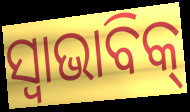
ସ୍ଵାଭାବିକ୍